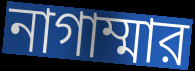
নাগাম্মার